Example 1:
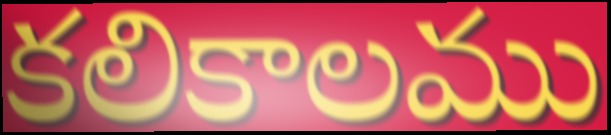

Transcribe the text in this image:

కలికాలము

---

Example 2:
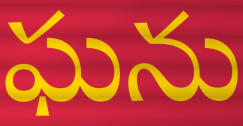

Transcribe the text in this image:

ఘను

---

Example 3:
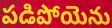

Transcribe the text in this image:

పడిపోయెను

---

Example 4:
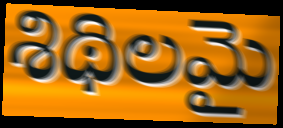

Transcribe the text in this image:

శిథిలమై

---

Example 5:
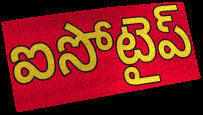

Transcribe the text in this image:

ఐసోటైప్